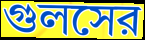
গুলসের